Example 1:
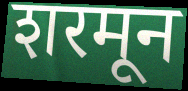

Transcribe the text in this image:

शरमून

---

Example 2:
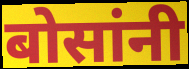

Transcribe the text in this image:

बोसांनी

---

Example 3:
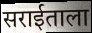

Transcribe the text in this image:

सराईताला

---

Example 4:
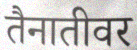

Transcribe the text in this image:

तैनातीवर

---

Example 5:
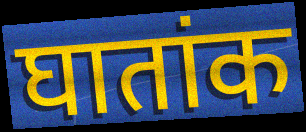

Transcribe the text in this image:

घातांक